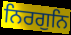
ਨਿਰਗੁਨਿ